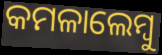
କମଳାଲେମ୍ୱୁ